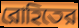
রোহিতের